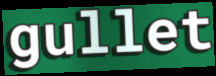
gullet